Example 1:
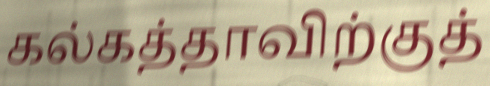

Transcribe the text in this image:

கல்கத்தாவிற்குத்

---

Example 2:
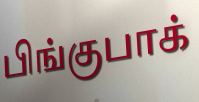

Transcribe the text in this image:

பிங்குபாக்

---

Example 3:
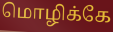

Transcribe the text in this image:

மொழிக்கே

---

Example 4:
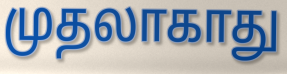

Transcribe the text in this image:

முதலாகாது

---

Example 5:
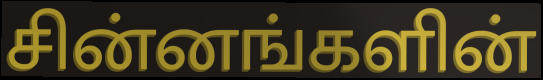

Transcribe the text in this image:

சின்னங்களின்